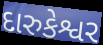
દારુકેશ્વર